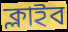
ক্লাইব